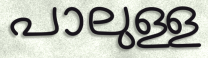
പാലുള്ള